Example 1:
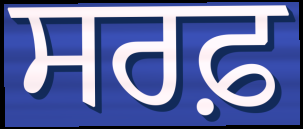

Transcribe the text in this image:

ਸਰਫ਼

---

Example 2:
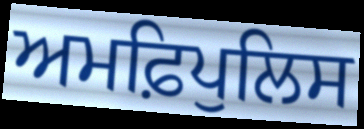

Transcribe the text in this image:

ਅਮਫ਼ਿਪੁਲਿਸ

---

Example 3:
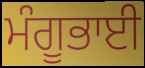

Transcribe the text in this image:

ਮੰਗੂਭਾਈ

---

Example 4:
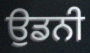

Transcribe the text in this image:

ਉਡਨੀ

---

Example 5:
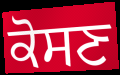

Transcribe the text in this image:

ਕੋਸਣ